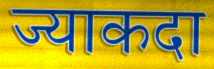
ज्याकदा